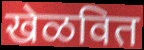
खेळवित